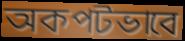
অকপটভাবে